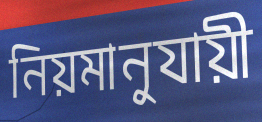
নিয়মানুযায়ী